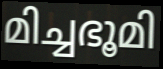
മിച്ചഭൂമി